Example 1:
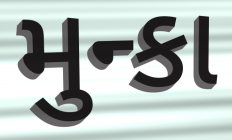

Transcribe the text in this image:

મુન્કા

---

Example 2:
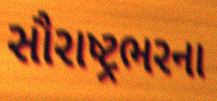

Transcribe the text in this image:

સૌરાષ્ટ્રભરના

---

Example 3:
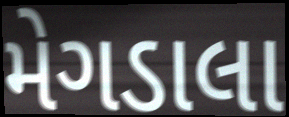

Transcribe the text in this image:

મેગડાલા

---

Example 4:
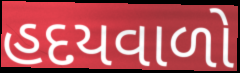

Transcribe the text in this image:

હદયવાળો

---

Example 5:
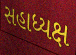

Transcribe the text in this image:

સહાધ્યક્ષ